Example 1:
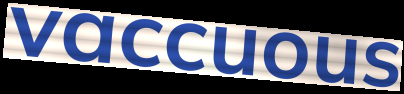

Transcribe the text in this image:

vaccuous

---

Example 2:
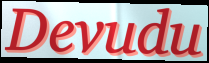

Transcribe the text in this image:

Devudu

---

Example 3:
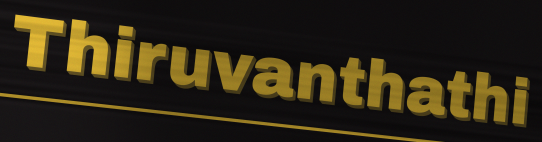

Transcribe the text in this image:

Thiruvanthathi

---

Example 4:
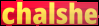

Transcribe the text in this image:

chalshe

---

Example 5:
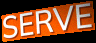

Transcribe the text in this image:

SERVE